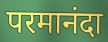
परमानंदा